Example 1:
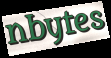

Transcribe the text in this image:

nbytes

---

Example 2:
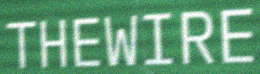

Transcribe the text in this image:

THEWIRE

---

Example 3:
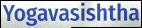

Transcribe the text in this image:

Yogavasishtha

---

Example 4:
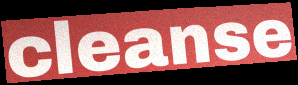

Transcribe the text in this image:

cleanse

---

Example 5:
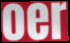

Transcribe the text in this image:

oer